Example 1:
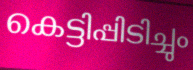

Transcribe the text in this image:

കെട്ടിപ്പിടിച്ചും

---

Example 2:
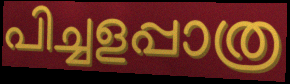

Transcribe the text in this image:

പിച്ചളപ്പാത്ര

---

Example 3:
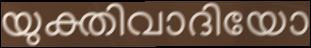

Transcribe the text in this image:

യുക്തിവാദിയോ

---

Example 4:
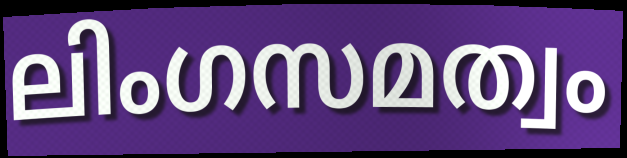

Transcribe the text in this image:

ലിംഗസമത്വം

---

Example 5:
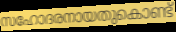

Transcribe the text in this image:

സഹോദരനായതുകൊണ്ട്